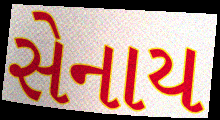
સેનાય